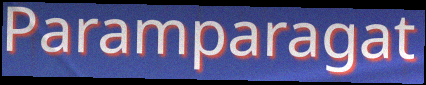
Paramparagat